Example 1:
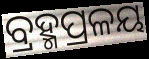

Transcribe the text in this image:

ବ୍ରହ୍ମପ୍ରଳୟ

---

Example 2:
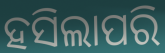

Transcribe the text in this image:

ହସିଲାପରି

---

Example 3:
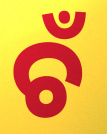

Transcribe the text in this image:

ଚଁ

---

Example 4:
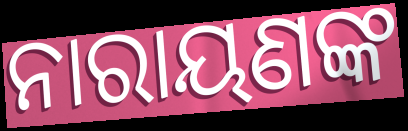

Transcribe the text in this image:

ନାରାୟଣଙ୍କ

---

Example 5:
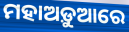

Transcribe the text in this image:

ମହାଅଡ଼ୁଆରେ